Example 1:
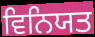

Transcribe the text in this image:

ਵਿਨਿਯਤ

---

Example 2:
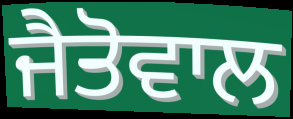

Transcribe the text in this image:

ਜੈਤੋਵਾਲ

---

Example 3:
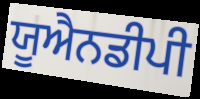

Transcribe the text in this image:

ਯੂਐਨਡੀਪੀ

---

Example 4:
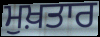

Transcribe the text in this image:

ਮੁਖ਼ਤਾਰ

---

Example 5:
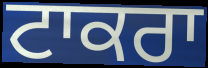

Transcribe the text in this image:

ਟਾਕਰਾ